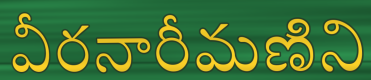
వీరనారీమణిని